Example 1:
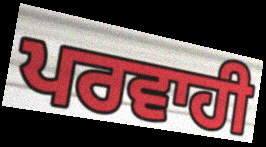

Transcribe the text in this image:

ਪਰਵਾਹੀ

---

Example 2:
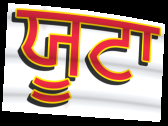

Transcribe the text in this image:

ਯੂਟਾ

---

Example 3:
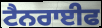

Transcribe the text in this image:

ਟੈਨਰਾਈਫ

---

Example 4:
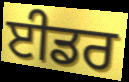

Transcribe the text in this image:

ਈਡਰ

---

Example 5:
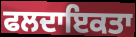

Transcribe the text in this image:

ਫਲਦਾਇਕਤਾ